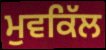
ਮੁਵਕਿੱਲ